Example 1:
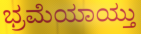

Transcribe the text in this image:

ಭ್ರಮೆಯಾಯ್ತು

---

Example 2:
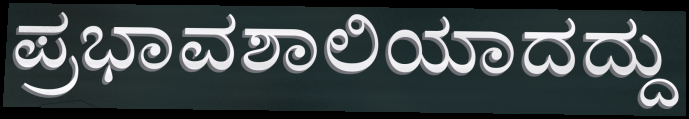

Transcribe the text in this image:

ಪ್ರಭಾವಶಾಲಿಯಾದದ್ದು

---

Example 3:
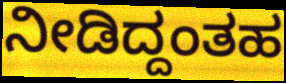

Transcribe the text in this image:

ನೀಡಿದ್ದಂತಹ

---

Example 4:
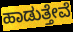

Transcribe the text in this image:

ಹಾಡುತ್ತೇವೆ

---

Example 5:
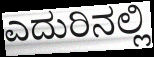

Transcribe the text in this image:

ಎದುರಿನಲ್ಲಿ